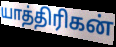
யாத்திரிகன்